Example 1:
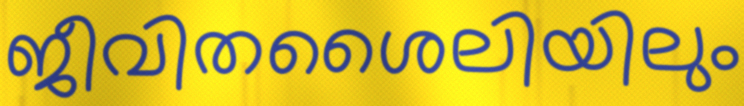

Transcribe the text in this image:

ജീവിതശൈലിയിലും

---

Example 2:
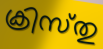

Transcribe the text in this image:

ക്രിസ്‌തു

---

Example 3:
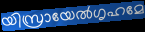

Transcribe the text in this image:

യിസ്രായേൽഗൃഹമേ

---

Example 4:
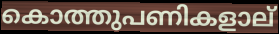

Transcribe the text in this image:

കൊത്തുപണികളാല്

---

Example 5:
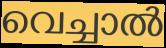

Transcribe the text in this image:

വെച്ചാൽ